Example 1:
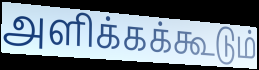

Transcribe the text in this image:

அளிக்கக்கூடும்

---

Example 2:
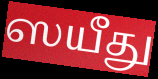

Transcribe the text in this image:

ஸயீது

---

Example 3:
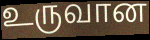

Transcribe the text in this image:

உருவான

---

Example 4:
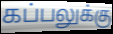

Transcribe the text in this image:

கப்பலுக்கு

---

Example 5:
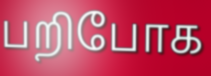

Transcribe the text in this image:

பறிபோக